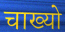
चाख्यो